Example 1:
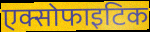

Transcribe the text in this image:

एक्सोफाइटिक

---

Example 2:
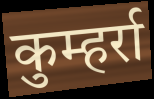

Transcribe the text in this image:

कुम्हर्रा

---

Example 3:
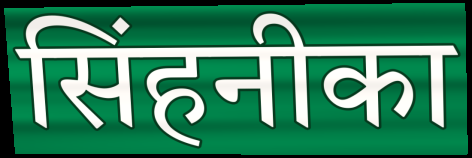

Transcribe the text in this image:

सिंहनीका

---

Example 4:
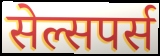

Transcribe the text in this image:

सेल्सपर्स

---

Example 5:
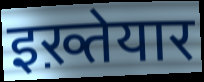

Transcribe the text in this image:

इख़्तेयार